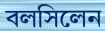
বলসিলেন